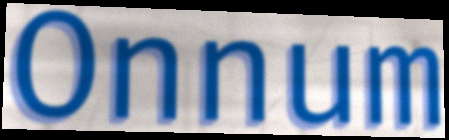
Onnum